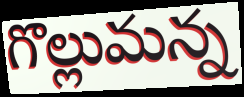
గొల్లుమన్న